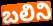
బలిని